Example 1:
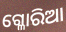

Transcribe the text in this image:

ଗ୍ଳୋରିଆ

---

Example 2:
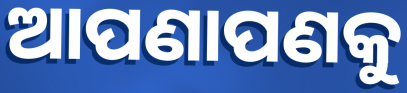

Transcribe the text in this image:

ଆପଣାପଣକୁ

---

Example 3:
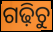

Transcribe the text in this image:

ଗଢ଼ିଚୁ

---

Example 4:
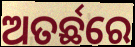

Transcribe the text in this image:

ଅତର୍ଛରେ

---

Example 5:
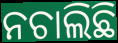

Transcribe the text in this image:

ନଚାଲିଛି